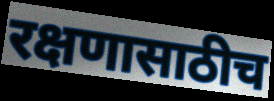
रक्षणासाठीच